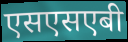
एसएसएबी